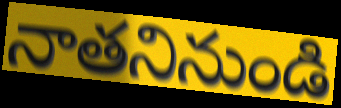
నాతనినుండి